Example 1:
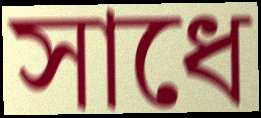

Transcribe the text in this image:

সাধে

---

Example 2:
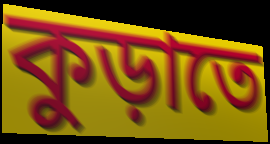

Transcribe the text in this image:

কুড়াতে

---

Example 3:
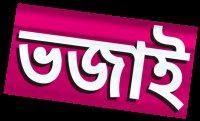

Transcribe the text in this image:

ভজাই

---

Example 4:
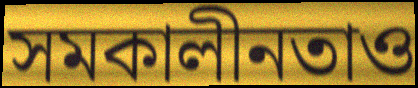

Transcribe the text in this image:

সমকালীনতাও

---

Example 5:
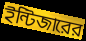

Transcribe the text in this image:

ইন্টিজারের